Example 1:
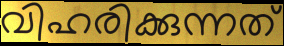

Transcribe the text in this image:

വിഹരിക്കുന്നത്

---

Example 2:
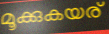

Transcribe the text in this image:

മൂക്കുകയര്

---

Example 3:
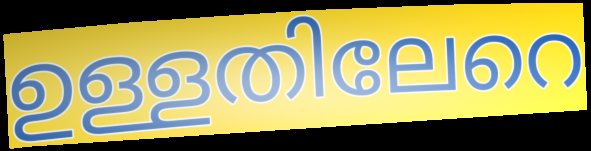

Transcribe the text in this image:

ഉള്ളതിലേറെ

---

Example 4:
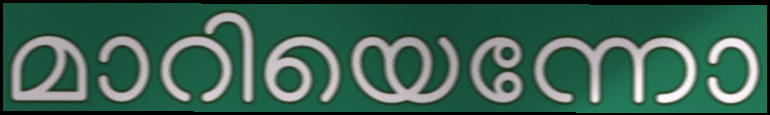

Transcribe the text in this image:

മാറിയെന്നോ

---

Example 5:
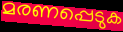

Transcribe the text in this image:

മരണപ്പെടുക